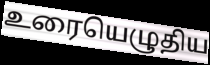
உரையெழுதிய